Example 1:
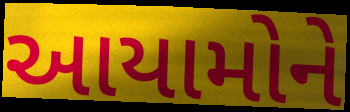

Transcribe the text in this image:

આયામોને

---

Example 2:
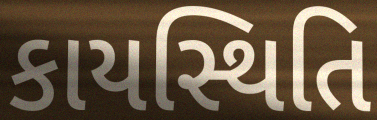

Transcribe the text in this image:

કાયસ્થિતિ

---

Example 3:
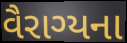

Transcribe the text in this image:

વૈરાગ્યના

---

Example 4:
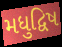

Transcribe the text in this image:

મધુદ્વિષ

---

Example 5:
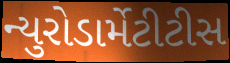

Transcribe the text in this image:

ન્યુરોડાર્મેટીટીસ